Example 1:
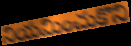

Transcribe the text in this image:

నియమించుకొని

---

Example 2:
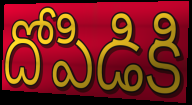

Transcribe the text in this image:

దోపిడికి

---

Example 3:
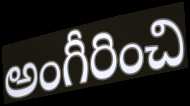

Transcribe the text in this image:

అంగీరించి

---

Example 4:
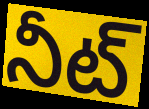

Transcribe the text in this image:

నీట్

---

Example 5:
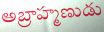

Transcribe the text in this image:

అబ్రాహ్మణుడు